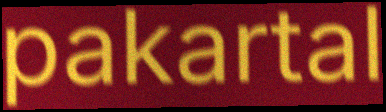
pakartal